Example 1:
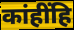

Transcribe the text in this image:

कांहींहि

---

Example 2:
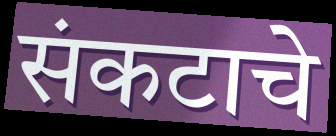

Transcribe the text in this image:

संकटाचे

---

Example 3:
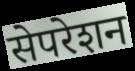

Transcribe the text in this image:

सेपरेशन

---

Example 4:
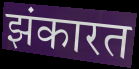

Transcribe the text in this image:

झंकारत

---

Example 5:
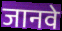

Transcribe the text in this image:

जानवे